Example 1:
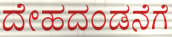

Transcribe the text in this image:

ದೇಹದಂಡನೆಗೆ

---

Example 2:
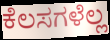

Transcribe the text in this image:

ಕೆಲಸಗಳೆಲ್ಲ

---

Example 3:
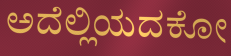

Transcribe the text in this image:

ಅದೆಲ್ಲಿಯದಕೋ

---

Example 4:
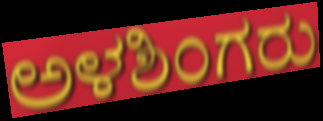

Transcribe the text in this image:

ಅಳಶಿಂಗರು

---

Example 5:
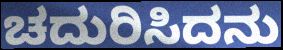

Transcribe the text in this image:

ಚದುರಿಸಿದನು